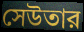
সেউতার